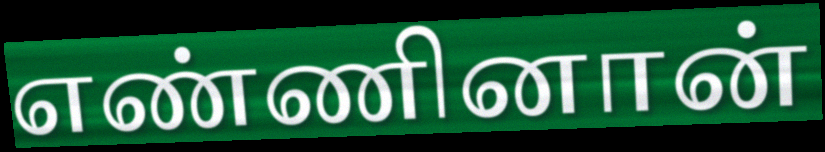
எண்ணினான்